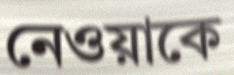
নেওয়াকে